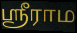
ஸ்ரீராம